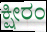
ಕ್ಷೀರಂ